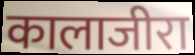
कालाजीरा